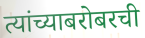
त्यांच्याबरोबरची